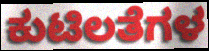
ಕುಟಿಲತೆಗಳ